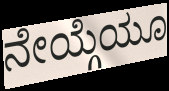
ನೇಯ್ಗೆಯೂ